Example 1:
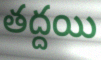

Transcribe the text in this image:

తద్దయి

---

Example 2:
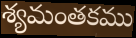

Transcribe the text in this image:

శ్యమంతకము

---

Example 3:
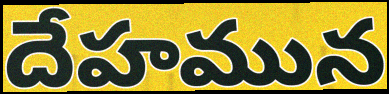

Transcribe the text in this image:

దేహమున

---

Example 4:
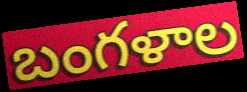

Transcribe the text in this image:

బంగళాల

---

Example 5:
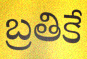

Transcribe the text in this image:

బ్రతికే